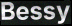
Bessy